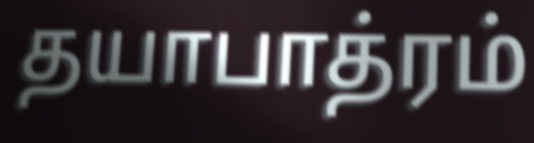
தயாபாத்ரம்